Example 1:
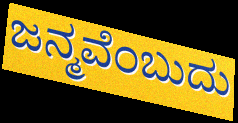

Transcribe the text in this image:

ಜನ್ಮವೆಂಬುದು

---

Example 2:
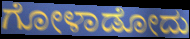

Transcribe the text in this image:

ಗೋಳಾಡೋದು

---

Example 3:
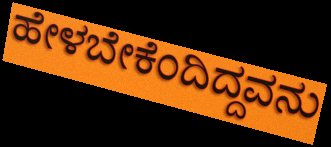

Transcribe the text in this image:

ಹೇಳಬೇಕೆಂದಿದ್ದವನು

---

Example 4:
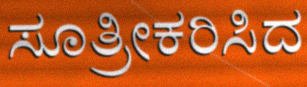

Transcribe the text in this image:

ಸೂತ್ರೀಕರಿಸಿದ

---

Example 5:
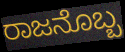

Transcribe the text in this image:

ರಾಜನೊಬ್ಬ